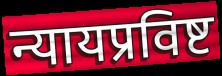
न्यायप्रविष्ट